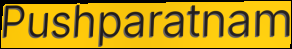
Pushparatnam